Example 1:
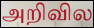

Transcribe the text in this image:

அறிவில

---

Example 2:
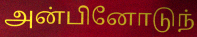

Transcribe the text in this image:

அன்பினோடுந்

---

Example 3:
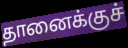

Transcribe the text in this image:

தானைக்குச்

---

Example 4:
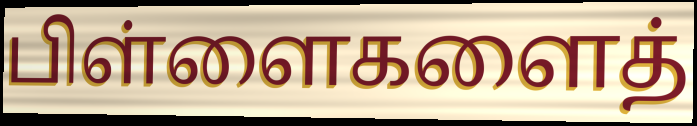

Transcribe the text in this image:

பிள்ளைகளைத்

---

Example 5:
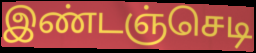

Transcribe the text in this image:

இண்டஞ்செடி